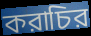
করাচির